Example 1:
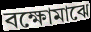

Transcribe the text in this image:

বক্ষোমাঝে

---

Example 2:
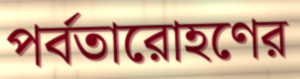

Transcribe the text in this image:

পর্বতারোহণের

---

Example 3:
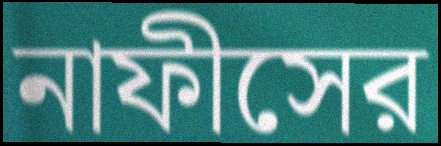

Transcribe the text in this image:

নাফীসের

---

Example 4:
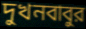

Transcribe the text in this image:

দুখনবাবুর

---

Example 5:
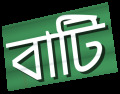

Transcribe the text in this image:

বাটি